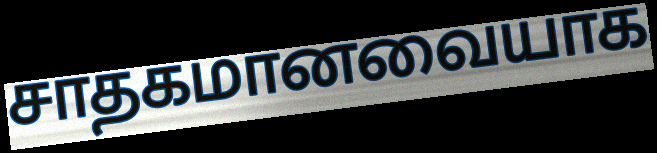
சாதகமானவையாக